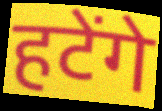
हटेंगे